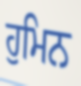
ਹੁਮਿਨ